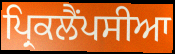
ਪ੍ਰਿਕਲੈਂਪਸੀਆ